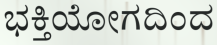
ಭಕ್ತಿಯೋಗದಿಂದ